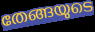
തേങ്ങയുടെ